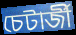
চেটাৰ্জী